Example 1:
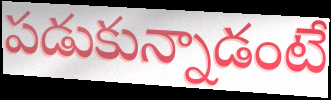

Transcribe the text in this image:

పడుకున్నాడంటే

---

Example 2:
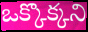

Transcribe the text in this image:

ఒక్కొక్కని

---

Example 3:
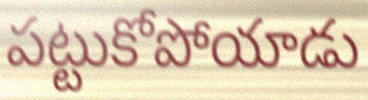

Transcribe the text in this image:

పట్టుకోపోయాడు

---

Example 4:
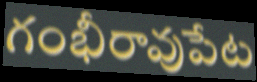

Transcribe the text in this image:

గంభీరావుపేట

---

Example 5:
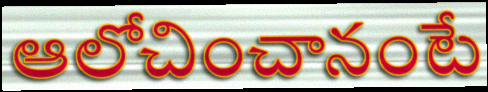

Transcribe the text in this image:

ఆలోచించానంటే